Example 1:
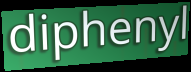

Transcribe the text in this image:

diphenyl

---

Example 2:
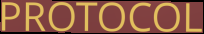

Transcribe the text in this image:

PROTOCOL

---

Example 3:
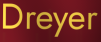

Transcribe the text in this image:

Dreyer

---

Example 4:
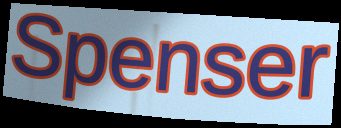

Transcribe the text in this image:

Spenser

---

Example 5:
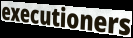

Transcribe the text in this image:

executioners